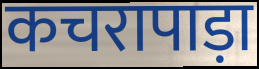
कचरापाड़ा